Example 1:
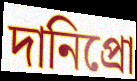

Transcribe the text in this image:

দানিপ্রো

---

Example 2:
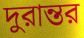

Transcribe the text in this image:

দুরান্তর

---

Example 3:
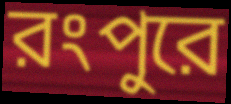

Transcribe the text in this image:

রংপুরে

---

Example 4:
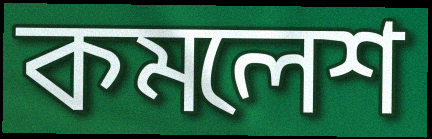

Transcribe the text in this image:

কমলেশ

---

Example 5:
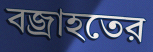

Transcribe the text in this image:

বজ্রাহতের